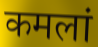
कमलां